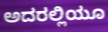
ಅದರಲ್ಲಿಯೂ